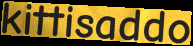
kittisaddo